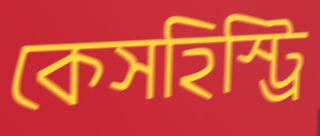
কেসহিস্ট্রি